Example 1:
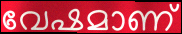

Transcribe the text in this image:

വേഷമാണ്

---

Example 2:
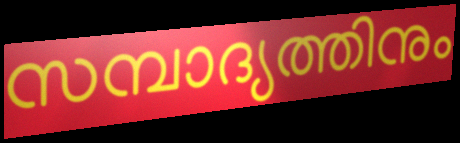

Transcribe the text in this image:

സമ്പാദ്യത്തിനും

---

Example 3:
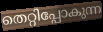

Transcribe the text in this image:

തെറ്റിപ്പോകുന്ന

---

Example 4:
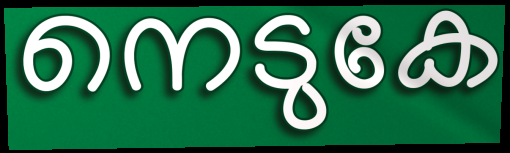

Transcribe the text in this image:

നെടുകേ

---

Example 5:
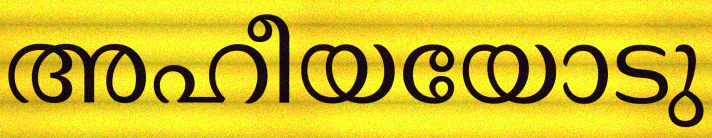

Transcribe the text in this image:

അഹീയയോടു